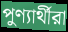
পুণ্যার্থীরা